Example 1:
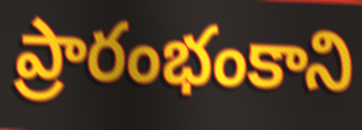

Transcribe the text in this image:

ప్రారంభంకాని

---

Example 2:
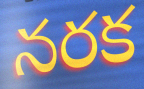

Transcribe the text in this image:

నరక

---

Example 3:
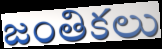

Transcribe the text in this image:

జంతికలు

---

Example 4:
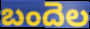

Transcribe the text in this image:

బందెల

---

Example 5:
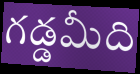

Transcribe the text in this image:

గడ్డమీది